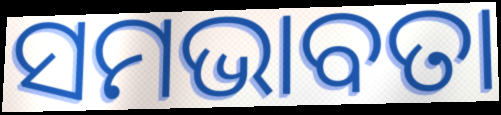
ସମଭାବତା